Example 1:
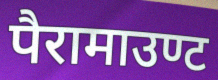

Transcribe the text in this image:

पैरामाउण्ट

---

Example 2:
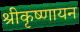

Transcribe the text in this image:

श्रीकृष्णायन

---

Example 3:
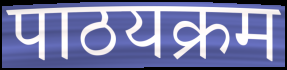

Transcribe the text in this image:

पाठयक्रम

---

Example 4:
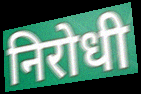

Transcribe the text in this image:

निरोधी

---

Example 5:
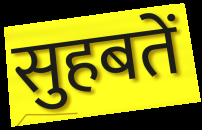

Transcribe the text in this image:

सुहबतें